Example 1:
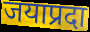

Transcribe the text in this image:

जयाप्रदा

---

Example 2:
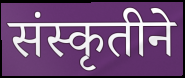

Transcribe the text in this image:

संस्कृतीने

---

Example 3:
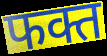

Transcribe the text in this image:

फक्त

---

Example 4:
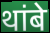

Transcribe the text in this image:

थांबे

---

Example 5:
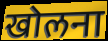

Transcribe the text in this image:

खोलना